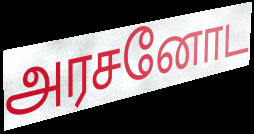
அரசனோட